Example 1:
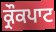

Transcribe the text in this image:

ਕ੍ਰੌਕਪਾਟ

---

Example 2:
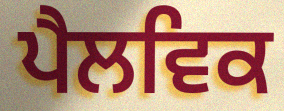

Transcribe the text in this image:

ਪੈਲਵਿਕ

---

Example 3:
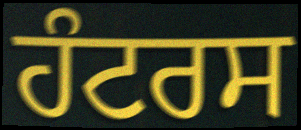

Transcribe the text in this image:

ਹੰਟਰਸ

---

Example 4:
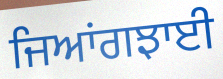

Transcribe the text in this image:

ਜਿਆਂਗਝਾਈ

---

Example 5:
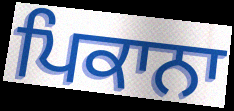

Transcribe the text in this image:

ਪਿਕਾਨਾ